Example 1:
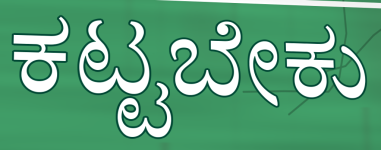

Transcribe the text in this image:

ಕಟ್ಟಬೇಕು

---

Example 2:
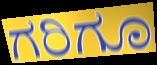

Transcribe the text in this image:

ಗರಿಗೂ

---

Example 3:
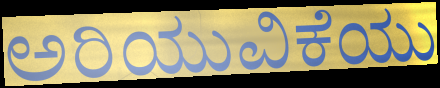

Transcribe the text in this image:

ಅರಿಯುವಿಕೆಯು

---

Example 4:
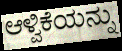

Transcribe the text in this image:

ಆಳ್ವಿಕೆಯನ್ನು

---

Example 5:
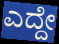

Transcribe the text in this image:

ಎದ್ದೇ